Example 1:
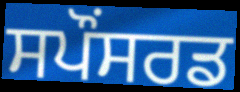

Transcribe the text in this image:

ਸਪੌਂਸਰਡ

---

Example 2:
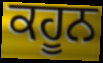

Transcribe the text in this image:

ਕਹੂਨ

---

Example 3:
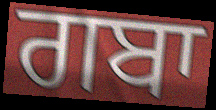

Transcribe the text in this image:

ਗਬਾ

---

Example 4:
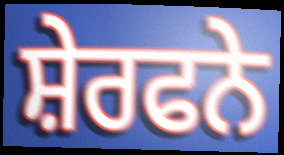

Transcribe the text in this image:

ਸ਼ੇਰਫਨੇ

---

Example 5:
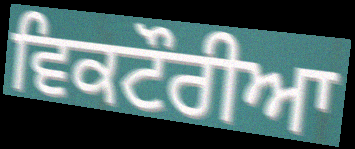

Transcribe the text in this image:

ਵਿਕਟੌਰੀਆ